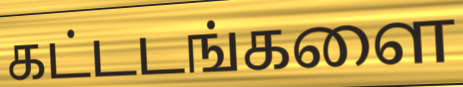
கட்டடங்களை